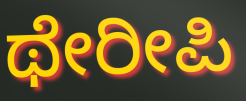
ಥೇರೀಪಿ